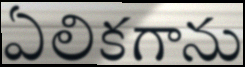
ఏలికగాను